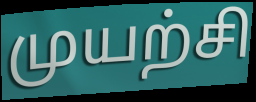
முயற்சி